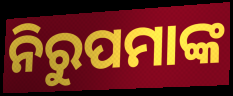
ନିରୁପମାଙ୍କ